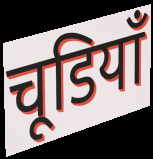
चूडियाँ